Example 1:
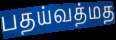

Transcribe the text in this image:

பதய்வத்மத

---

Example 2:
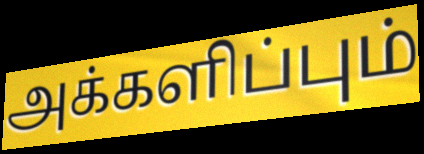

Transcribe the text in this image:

அக்களிப்பும்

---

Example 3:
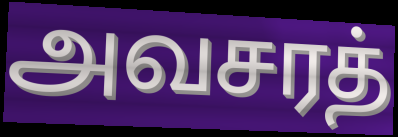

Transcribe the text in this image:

அவசரத்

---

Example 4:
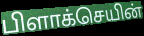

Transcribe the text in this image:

பிளாக்செயின்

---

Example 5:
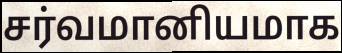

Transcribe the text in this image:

சர்வமானியமாக